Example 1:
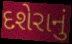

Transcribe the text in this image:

દશેરાનું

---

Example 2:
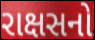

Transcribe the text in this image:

રાક્ષસનો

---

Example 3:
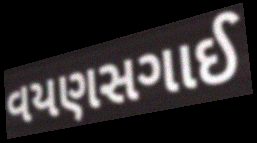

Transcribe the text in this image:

વયણસગાઈ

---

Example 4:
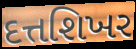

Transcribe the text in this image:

દત્તશિખર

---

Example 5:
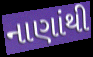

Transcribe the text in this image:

નાણાંથી